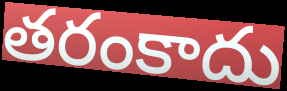
తరంకాదు